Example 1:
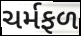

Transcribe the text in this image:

ચર્મફળ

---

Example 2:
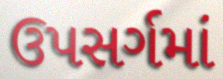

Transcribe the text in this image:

ઉપસર્ગમાં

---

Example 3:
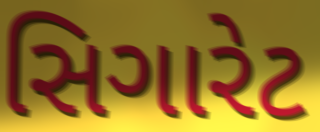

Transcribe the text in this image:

સિગારેટ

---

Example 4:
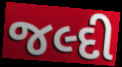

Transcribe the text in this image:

જલ્દી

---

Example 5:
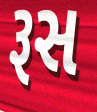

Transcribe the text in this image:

રૂસ